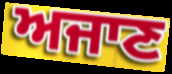
ਅਜਾਣ